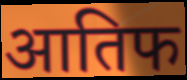
आतिफ